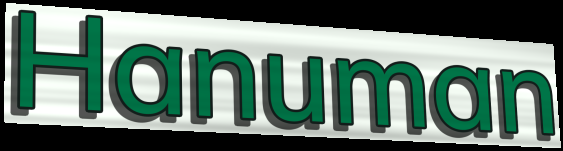
Hanuman